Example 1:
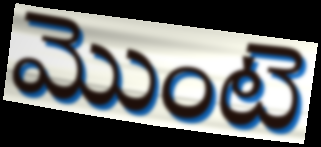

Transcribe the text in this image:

మొంటె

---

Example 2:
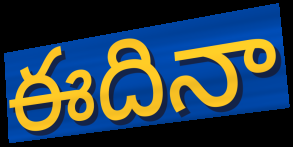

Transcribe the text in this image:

ఈదినా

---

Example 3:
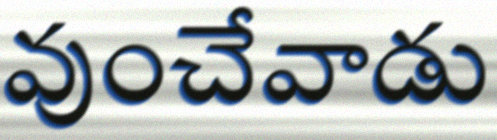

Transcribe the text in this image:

వుంచేవాడు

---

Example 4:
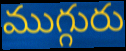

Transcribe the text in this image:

ముగ్గురు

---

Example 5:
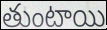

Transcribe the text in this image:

తుంటాయి